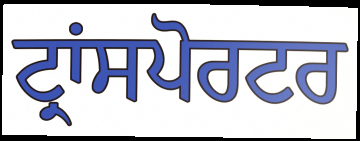
ਟ੍ਰਾਂਸਪੋਰਟਰ